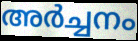
അർച്ചനം